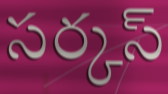
సర్కస్